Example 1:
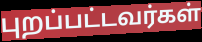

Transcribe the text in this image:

புறப்பட்டவர்கள்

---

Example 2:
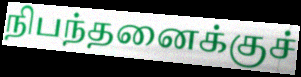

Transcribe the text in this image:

நிபந்தனைக்குச்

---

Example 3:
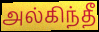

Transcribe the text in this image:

அல்கிந்தீ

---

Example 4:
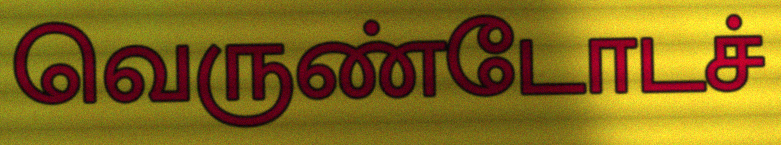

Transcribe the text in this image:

வெருண்டோடச்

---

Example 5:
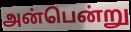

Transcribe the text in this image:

அன்பென்று